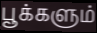
பூக்களும்